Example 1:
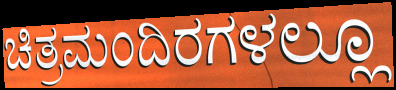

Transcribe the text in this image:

ಚಿತ್ರಮಂದಿರಗಳಲ್ಲೂ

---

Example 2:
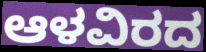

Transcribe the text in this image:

ಆಳವಿರದ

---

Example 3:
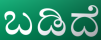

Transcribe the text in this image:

ಬಡಿದೆ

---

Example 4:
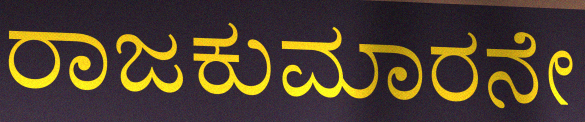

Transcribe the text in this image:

ರಾಜಕುಮಾರನೇ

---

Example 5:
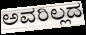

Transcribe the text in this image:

ಅವರಿಲ್ಲದ